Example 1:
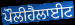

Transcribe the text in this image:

ਪੌਲੀਹੈਲਾਈਟ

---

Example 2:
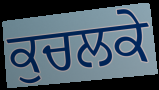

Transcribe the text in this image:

ਕੁਚਲਕੇ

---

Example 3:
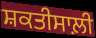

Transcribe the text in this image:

ਸ਼ਕਤੀਸਾਲ਼ੀ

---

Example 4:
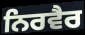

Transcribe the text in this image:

ਨਿਰਵੈਰ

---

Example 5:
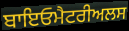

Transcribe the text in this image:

ਬਾਇਓਮੈਟਰੀਅਲਸ